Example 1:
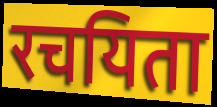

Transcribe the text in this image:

रचयिता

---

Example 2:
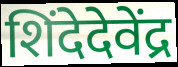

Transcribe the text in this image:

शिंदेदेवेंद्र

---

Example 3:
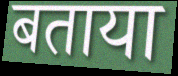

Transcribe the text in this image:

बताया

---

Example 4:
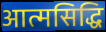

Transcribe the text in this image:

आत्मसिद्धि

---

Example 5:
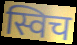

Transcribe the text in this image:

स्विच